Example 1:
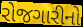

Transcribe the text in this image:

રોજગારીનો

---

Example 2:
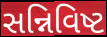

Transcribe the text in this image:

સન્નિવિષ્ટ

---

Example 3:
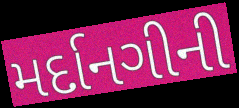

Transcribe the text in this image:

મર્દાનગીની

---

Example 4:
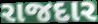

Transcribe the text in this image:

રાજદાર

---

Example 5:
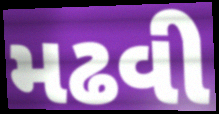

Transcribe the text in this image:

મઢવી